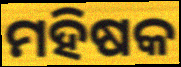
ମହିଷକ